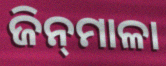
ଜିନ୍‌ମାଳା